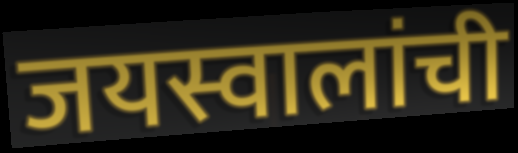
जयस्वालांची